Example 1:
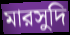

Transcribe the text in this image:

মারসুদি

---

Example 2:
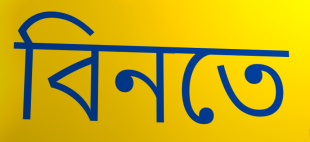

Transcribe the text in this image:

বিনতে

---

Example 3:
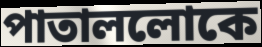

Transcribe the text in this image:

পাতাললোকে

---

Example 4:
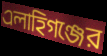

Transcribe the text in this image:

এলাহিগঞ্জের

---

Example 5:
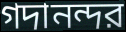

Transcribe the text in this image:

গদানন্দর